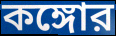
কঙ্গোর